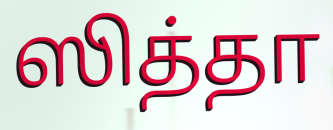
ஸித்தா